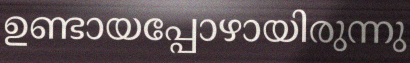
ഉണ്ടായപ്പോഴായിരുന്നു